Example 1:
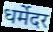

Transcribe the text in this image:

धर्मेदर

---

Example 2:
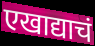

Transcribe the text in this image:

एखाद्याचं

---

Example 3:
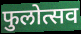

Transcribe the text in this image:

फुलोत्सव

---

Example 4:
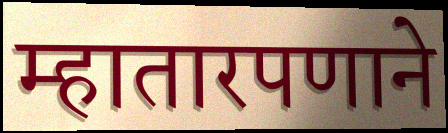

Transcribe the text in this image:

म्हातारपणाने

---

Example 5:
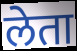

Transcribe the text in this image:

लेता